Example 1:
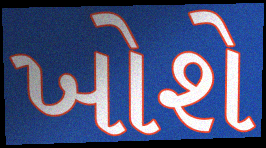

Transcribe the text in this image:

ખોશે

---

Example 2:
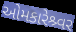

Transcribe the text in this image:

ઓમકારેશ્ર્વર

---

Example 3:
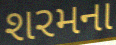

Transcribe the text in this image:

શરમના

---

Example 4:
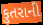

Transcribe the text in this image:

કુતરાની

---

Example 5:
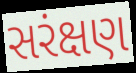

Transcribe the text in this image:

સરંક્ષણ